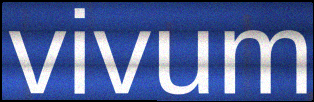
vivum